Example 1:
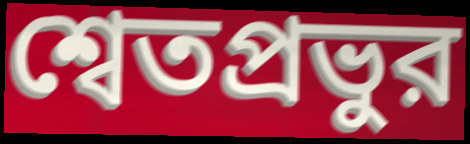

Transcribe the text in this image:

শ্বেতপ্রভুর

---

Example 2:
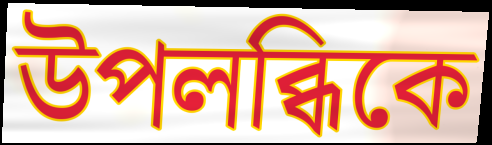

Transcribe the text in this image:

উপলব্ধিকে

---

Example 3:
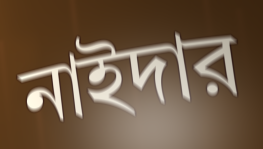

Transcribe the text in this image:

নাইদার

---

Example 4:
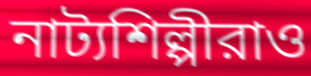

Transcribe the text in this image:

নাট্যশিল্পীরাও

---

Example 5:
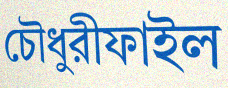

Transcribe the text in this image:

চৌধুরীফাইল